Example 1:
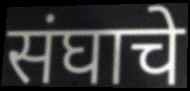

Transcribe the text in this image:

संघाचे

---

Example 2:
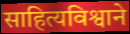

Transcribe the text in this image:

साहित्यविश्वाने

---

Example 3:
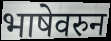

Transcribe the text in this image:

भाषेवरुन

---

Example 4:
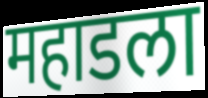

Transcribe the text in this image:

महाडला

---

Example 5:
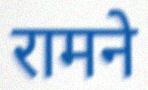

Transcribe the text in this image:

रामने